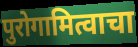
पुरोगामित्वाचा